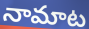
నామాట